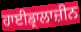
ਹਾਈਡ੍ਰਾਲਾਜ਼ੀਨ